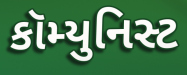
કૉમ્યુનિસ્ટ